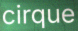
cirque